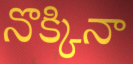
నొక్కినా